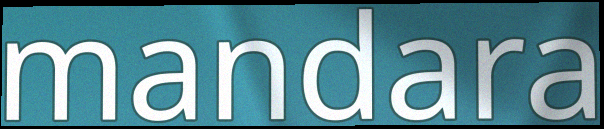
mandara